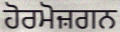
ਹੋਰਮੋਜ਼ਗਨ